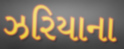
ઝરિયાના